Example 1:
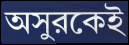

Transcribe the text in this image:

অসুরকেই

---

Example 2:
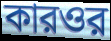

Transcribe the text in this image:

কারওর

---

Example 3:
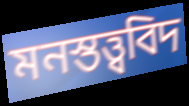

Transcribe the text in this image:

মনস্তত্ত্ববিদ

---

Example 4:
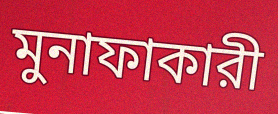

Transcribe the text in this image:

মুনাফাকারী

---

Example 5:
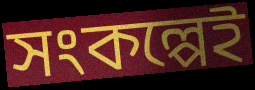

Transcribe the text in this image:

সংকল্পেই